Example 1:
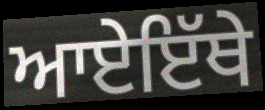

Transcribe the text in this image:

ਆਏਇੱਥੇ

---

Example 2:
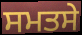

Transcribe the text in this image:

ਸਮਤਸੇ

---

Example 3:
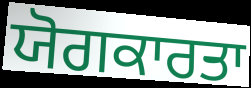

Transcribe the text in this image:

ਯੋਗਕਾਰਤਾ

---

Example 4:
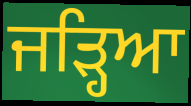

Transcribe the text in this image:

ਜੜ੍ਹਿਆ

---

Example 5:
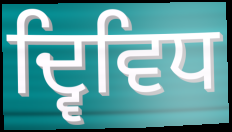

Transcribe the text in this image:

ਦ੍ਵਿਵਿਧ